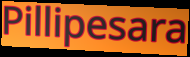
Pillipesara